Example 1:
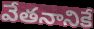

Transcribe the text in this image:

వేతనానికే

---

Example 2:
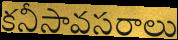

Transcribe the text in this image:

కనీసావసరాలు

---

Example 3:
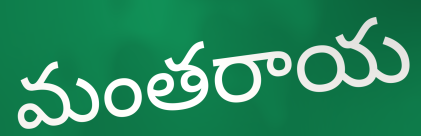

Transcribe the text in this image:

మంతరాయ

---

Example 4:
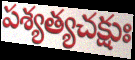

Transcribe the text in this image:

పశ్యత్యచక్షుః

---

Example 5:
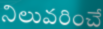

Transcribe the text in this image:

నిలువరించే